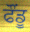
ਫੌਂਡੂ